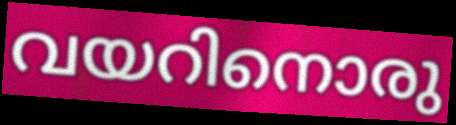
വയറിനൊരു